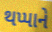
થપ્પાને